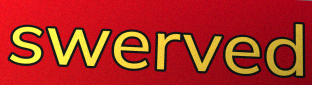
swerved